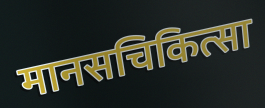
मानसचिकित्सा